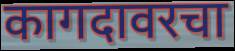
कागदावरचा